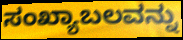
ಸಂಖ್ಯಾಬಲವನ್ನು